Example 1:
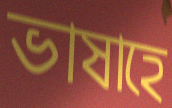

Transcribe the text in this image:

ভাষাহে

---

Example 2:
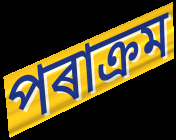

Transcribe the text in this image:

পৰাক্ৰম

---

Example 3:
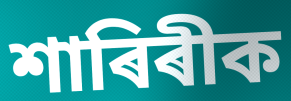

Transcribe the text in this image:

শাৰিৰীক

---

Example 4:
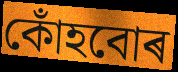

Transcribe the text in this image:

কোঁহবোৰ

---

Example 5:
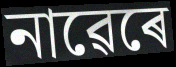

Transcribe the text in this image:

নাৱেৰে